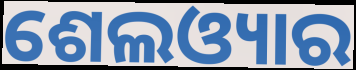
ଶେଲଓ୍ୟାର